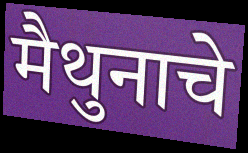
मैथुनाचे